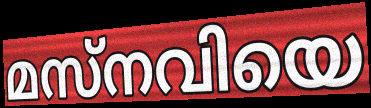
മസ്നവിയെ